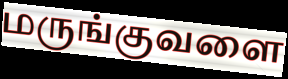
மருங்குவளை